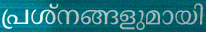
പ്രശ്നങ്ങളുമായി